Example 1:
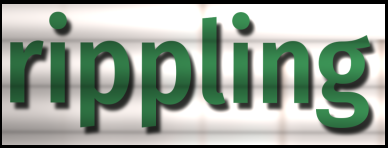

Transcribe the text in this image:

rippling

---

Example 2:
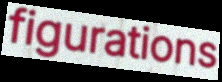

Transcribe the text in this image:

figurations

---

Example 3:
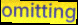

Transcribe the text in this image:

omitting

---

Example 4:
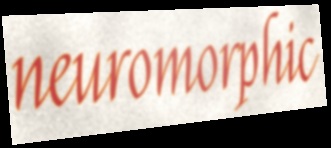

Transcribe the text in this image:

neuromorphic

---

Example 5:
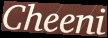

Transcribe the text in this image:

Cheeni